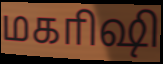
மகரிஷி